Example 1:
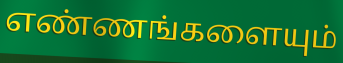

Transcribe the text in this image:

எண்ணங்களையும்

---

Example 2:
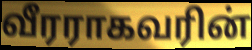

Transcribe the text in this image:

வீரராகவரின்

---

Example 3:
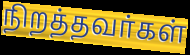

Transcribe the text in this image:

நிறத்தவர்கள்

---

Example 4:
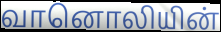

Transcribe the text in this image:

வானொலியின்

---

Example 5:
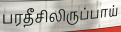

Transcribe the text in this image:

பரதீசிலிருப்பாய்